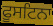
ਫੂਸਟਿਨਾ